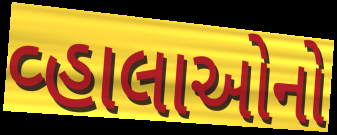
વ્હાલાઓનો